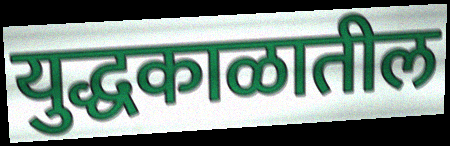
युद्धकाळातील